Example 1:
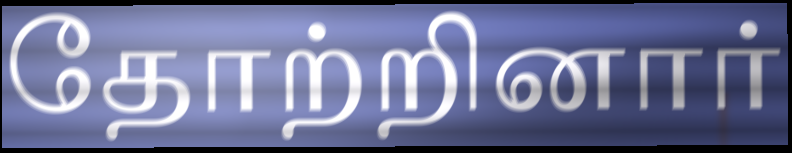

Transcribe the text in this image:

தோற்றினார்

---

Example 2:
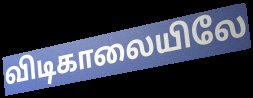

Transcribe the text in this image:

விடிகாலையிலே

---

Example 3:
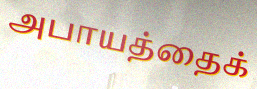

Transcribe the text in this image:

அபாயத்தைக்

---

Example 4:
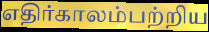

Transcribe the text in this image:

எதிர்காலம்பற்றிய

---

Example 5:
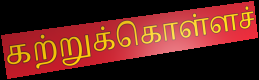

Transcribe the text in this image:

கற்றுக்கொள்ளச்